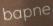
bapne